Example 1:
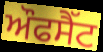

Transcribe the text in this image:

ਔਫਸੈੱਟ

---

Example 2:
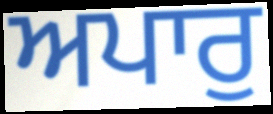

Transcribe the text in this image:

ਅਪਾਰੁ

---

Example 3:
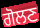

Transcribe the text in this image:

ਗੋਲਣ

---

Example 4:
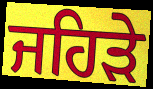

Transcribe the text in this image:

ਜਹਿੜੇ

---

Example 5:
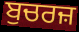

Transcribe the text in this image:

ਬੁਚਰਜ਼